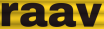
raav